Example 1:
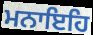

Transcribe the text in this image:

ਮਨਾਇਹਿ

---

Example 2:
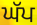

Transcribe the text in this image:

ਘੱਪ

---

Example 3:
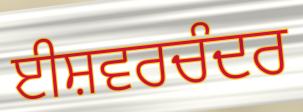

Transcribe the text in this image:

ਈਸ਼ਵਰਚੰਦਰ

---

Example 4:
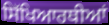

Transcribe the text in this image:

ਸਿੱਖਿਆਰਥੀਆਂ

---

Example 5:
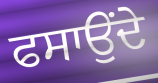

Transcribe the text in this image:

ਫਸਾਉਂਦੇ